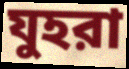
যুহরা